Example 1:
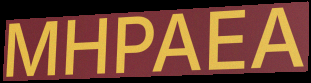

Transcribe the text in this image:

MHPAEA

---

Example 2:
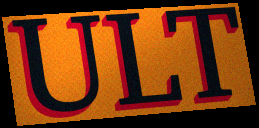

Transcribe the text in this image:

ULT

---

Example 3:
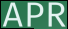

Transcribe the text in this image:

APR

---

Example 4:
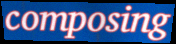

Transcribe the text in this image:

composing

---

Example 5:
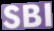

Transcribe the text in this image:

SBI